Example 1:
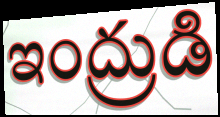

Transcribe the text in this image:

ఇంద్రుడి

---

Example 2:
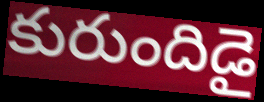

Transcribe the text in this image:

కురుందిడై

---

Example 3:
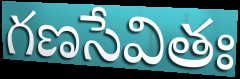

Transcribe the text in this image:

గణసేవితః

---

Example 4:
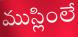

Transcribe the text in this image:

ముస్లింలే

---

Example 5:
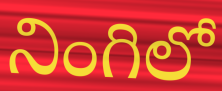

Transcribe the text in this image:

నింగిలో